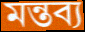
মন্তব্য়